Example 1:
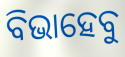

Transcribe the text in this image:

ବିଭାହେବୁ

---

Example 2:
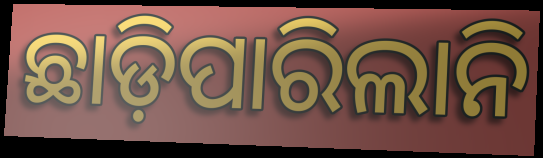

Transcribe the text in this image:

ଛାଡ଼ିପାରିଲାନି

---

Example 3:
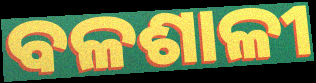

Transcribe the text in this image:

ବଳଶାଳୀ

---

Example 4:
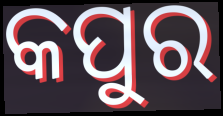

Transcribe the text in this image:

କପୁର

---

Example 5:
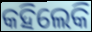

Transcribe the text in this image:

କହିଲେକି